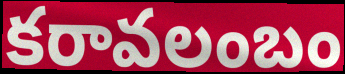
కరావలంబం